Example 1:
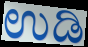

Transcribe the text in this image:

ಉಡಿ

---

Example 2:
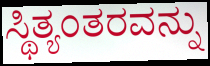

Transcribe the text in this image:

ಸ್ಥಿತ್ಯಂತರವನ್ನು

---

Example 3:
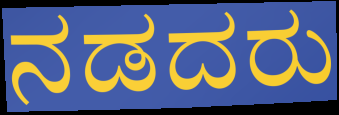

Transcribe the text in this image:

ನಡದರು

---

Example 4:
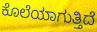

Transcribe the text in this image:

ಕೊಲೆಯಾಗುತ್ತಿದೆ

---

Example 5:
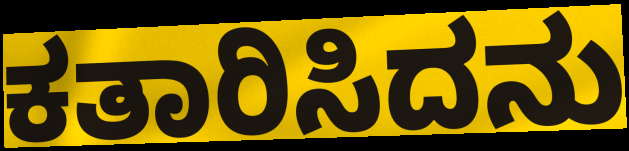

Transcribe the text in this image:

ಕತಾರಿಸಿದನು